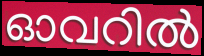
ഓവറിൽ